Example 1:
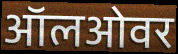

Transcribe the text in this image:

ऑलओवर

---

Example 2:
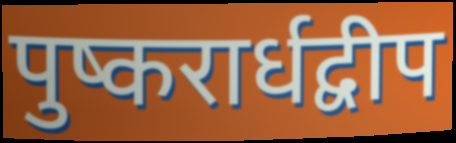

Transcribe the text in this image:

पुष्करार्धद्वीप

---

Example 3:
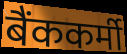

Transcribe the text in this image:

बैंककर्मी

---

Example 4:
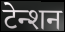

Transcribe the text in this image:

टेन्शन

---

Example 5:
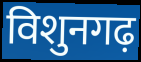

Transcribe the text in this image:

विशुनगढ़